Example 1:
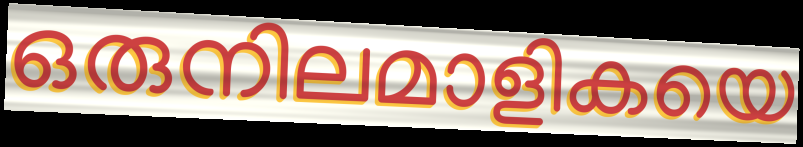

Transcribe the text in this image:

ഒരുനിലമാളികയെ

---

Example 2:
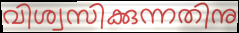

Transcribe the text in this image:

വിശ്വസിക്കുന്നതിനു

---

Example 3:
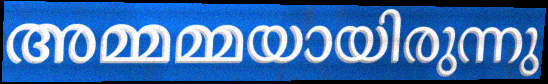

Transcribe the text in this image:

അമ്മമ്മയായിരുന്നു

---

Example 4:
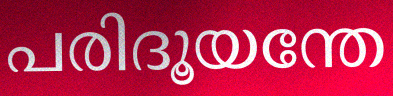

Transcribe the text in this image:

പരിദൂയന്തേ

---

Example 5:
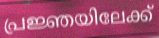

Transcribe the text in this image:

പ്രജ്ഞയിലേക്ക്